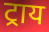
ट्राय